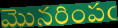
మొనరింపఁ